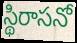
స్థిరాసనో